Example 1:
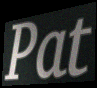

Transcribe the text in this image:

Pat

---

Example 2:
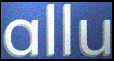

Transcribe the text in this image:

allu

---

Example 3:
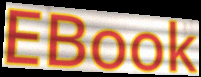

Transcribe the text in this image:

EBook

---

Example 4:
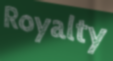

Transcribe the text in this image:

Royalty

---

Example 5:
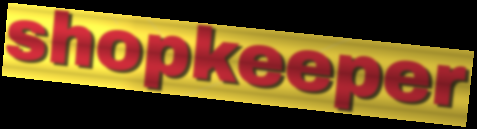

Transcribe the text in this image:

shopkeeper